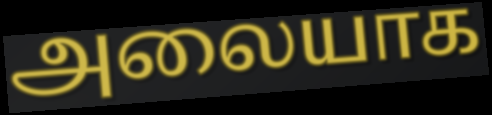
அலையாக